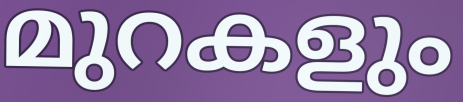
മുറകളും